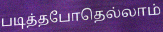
படித்தபோதெல்லாம்